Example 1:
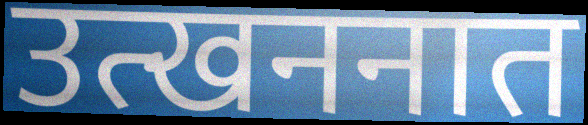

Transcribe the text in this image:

उत्खननात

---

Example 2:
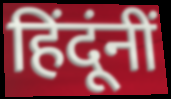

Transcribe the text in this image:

हिंदूंनीं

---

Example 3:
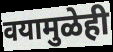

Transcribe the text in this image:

वयामुळेही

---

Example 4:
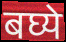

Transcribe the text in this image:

बघ्ये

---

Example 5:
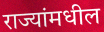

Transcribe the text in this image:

राज्यांमधील